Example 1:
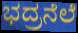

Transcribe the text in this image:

ಭದ್ರನೆಲೆ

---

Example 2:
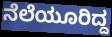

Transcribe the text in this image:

ನೆಲೆಯೂರಿದ್ದ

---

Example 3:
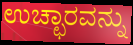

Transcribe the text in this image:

ಉಚ್ಛಾರವನ್ನು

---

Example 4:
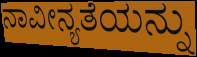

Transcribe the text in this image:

ನಾವೀನ್ಯತೆಯನ್ನು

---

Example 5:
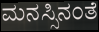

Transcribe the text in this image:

ಮನಸ್ಸಿನಂತೆ